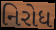
નિરોધ